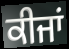
ਕੀਜਾਂ